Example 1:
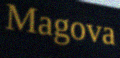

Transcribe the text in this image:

Magova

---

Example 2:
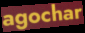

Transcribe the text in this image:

agochar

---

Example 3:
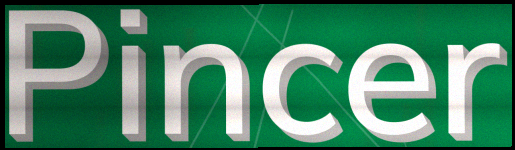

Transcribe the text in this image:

Pincer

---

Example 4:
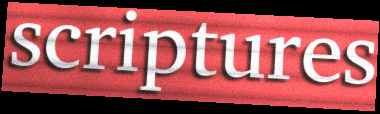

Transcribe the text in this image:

scriptures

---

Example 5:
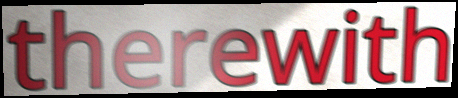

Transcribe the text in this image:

therewith